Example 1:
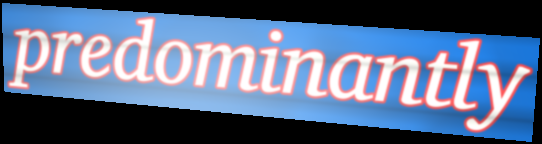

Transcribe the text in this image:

predominantly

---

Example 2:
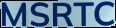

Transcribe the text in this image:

MSRTC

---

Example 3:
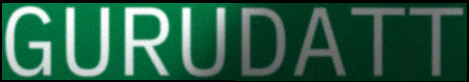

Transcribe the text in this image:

GURUDATT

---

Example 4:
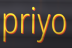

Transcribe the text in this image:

priyo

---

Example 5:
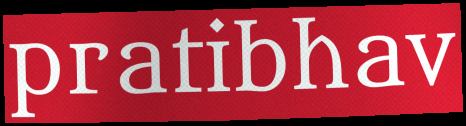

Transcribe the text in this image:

pratibhav